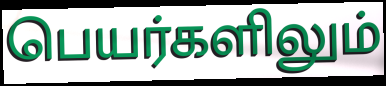
பெயர்களிலும்